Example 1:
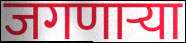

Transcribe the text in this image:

जगणार्‍या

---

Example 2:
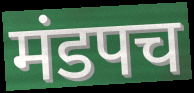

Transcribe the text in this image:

मंडपच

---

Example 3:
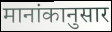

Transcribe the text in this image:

मानांकानुसार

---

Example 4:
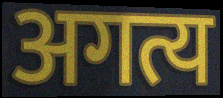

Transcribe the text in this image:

अगत्य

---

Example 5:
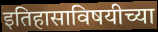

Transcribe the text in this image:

इतिहासाविषयीच्या